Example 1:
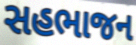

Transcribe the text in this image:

સહભાજન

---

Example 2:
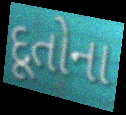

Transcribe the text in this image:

દૂતોના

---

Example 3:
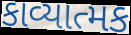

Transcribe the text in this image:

કાવ્યાત્મક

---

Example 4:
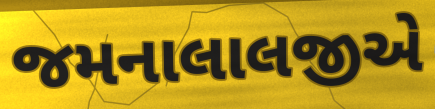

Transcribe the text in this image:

જમનાલાલજીએ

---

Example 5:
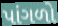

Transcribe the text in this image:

પાંગળો